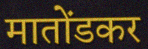
मातोंडकर